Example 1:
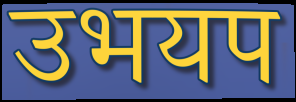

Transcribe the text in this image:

उभयप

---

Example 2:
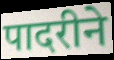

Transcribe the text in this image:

पादरीने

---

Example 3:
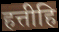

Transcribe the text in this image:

हत्तीहि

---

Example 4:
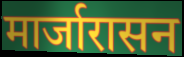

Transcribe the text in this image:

मार्जारासन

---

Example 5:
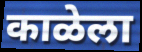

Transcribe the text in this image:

काळेला